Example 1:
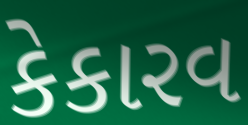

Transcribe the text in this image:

કેકારવ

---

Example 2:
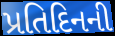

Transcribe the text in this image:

પ્રતિદિનની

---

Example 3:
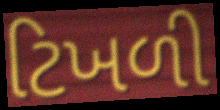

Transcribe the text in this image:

ટિખળી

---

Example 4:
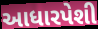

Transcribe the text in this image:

આધારપેશી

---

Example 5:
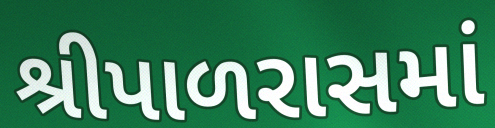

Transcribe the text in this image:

શ્રીપાળરાસમાં